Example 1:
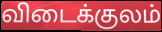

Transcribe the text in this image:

விடைக்குலம்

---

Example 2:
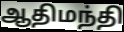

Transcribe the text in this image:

ஆதிமந்தி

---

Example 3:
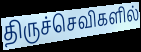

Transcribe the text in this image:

திருச்செவிகளில்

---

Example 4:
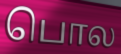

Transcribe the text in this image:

பொல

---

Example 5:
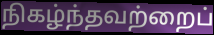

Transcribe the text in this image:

நிகழ்ந்தவற்றைப்